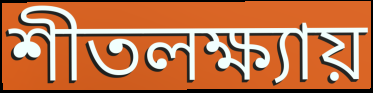
শীতলক্ষ্যায়